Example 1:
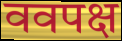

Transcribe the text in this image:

ववपक्ष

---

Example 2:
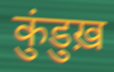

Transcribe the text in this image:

कुंड़ुख़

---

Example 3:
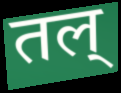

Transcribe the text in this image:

तल्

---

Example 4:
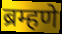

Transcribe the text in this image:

ब्रम्हणे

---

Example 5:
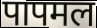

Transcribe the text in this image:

पापमल